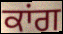
ਕਾਂਗ